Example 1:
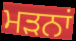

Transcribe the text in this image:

ਮੜਨਾਂ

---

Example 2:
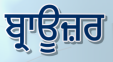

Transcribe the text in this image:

ਬ੍ਰਾਊਜ਼ਰ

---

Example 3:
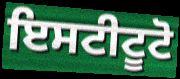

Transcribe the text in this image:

ਇਸਟੀਟੂਟੋ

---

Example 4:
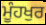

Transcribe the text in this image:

ਮੂੰਹਖੁਰ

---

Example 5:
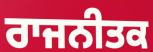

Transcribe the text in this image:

ਰਾਜਨੀਤਕ